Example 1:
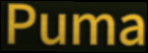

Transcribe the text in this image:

Puma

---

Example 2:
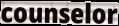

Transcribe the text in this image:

counselor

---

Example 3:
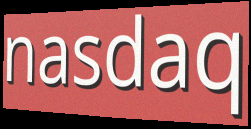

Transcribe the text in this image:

nasdaq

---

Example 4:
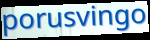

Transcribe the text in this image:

porusvingo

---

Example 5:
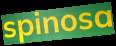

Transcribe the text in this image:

spinosa